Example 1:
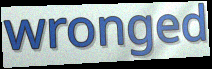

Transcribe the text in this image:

wronged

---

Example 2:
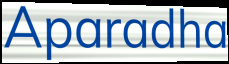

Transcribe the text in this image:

Aparadha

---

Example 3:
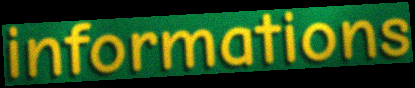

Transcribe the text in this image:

informations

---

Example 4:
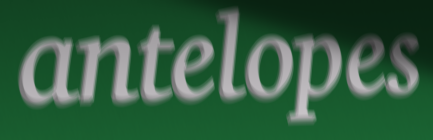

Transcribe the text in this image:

antelopes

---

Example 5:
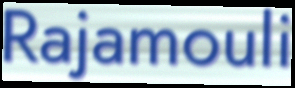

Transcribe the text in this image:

Rajamouli